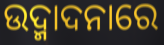
ଉଦ୍ମାଦନାରେ